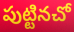
పుట్టినచో